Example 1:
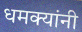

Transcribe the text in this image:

धमक्यांनी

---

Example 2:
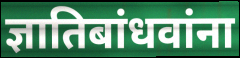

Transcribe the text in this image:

ज्ञातिबांधवांना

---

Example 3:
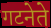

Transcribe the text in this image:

गटनेते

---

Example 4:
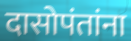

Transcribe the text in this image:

दासोपंतांना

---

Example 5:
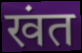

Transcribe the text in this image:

खंत